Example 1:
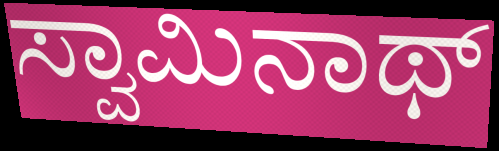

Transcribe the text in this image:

ಸ್ವಾಮಿನಾಥ್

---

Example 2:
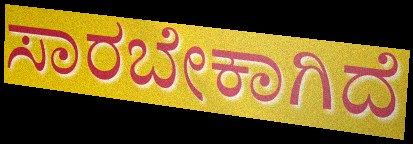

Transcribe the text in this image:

ಸಾರಬೇಕಾಗಿದೆ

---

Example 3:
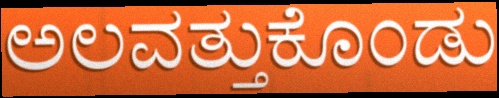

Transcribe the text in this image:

ಅಲವತ್ತುಕೊಂಡು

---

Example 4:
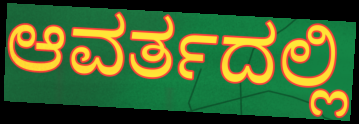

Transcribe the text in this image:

ಆವರ್ತದಲ್ಲಿ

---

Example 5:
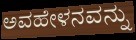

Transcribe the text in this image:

ಅವಹೇಳನವನ್ನು